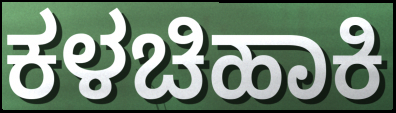
ಕಳಚಿಹಾಕಿ